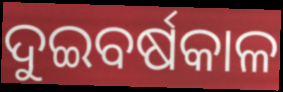
ଦୁଇବର୍ଷକାଳ